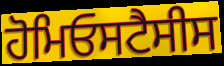
ਹੋਮਿਓਸਟੈਸੀਸ